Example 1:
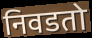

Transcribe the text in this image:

निवडतो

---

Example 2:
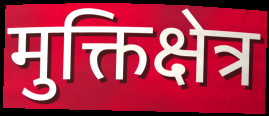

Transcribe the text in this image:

मुक्तिक्षेत्र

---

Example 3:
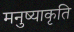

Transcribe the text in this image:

मनुष्याकृति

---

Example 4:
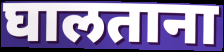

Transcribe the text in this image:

घालताना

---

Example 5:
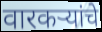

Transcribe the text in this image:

वारकऱ्यांचे